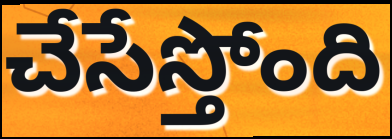
చేసేస్తోంది